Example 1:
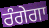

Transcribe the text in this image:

ਰੰਗੇਗਾ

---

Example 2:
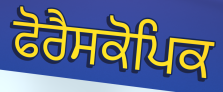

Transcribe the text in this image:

ਫੋਰੈਸਕੋਪਿਕ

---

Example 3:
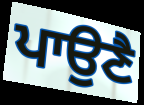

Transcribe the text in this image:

ਪਾਉਣੈ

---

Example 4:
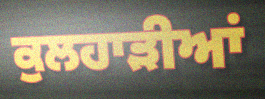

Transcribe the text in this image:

ਕੁਲਹਾੜੀਆਂ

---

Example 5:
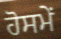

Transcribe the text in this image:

ਹੋਸਮੇਂ